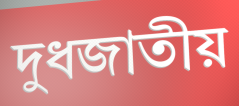
দুধজাতীয়